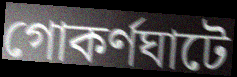
গোকর্ণঘাটে